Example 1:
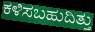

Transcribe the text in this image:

ಕಳಿಸಬಹುದಿತ್ತು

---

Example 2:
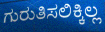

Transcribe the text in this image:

ಗುರುತಿಸಲಿಕ್ಕಿಲ್ಲ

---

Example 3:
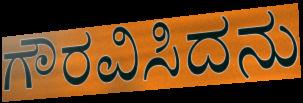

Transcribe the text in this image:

ಗೌರವಿಸಿದನು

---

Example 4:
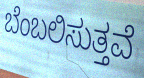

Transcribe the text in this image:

ಬೆಂಬಲಿಸುತ್ತವೆ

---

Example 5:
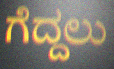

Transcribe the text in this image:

ಗೆದ್ದಲು